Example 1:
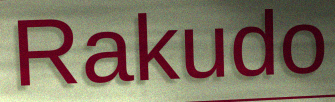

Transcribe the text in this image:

Rakudo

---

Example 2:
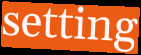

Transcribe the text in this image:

setting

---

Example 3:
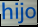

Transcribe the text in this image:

hijo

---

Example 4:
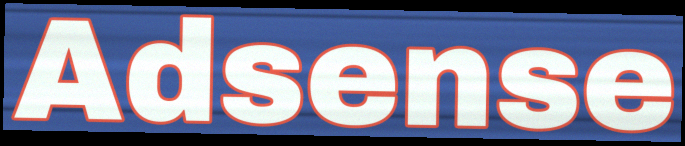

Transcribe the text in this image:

Adsense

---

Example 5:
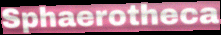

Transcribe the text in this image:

Sphaerotheca